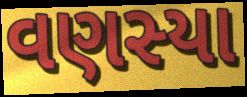
વણસ્યા